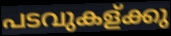
പടവുകള്ക്കു